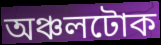
অঞ্চলটোক